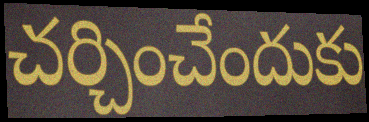
చర్చించేందుకు